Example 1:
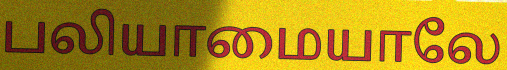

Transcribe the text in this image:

பலியாமையாலே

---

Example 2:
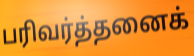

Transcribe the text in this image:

பரிவர்த்தனைக்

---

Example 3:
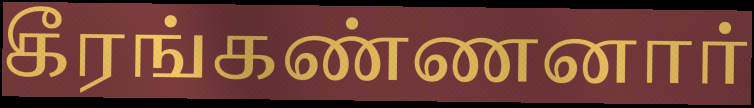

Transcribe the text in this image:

கீரங்கண்ணனார்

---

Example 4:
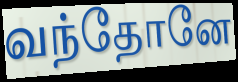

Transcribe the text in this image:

வந்தோனே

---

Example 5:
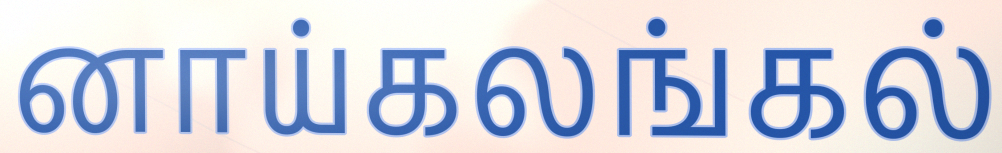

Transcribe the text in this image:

னாய்கலங்கல்